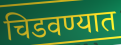
चिडवण्यात